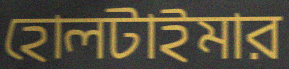
হোলটাইমার